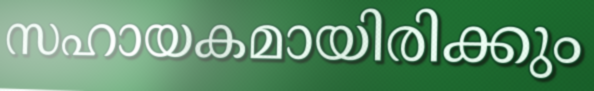
സഹായകമായിരിക്കും